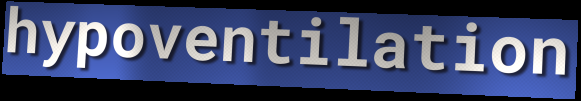
hypoventilation